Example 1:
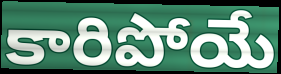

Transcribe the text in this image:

కారిపోయే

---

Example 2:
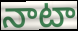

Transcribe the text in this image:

నాటా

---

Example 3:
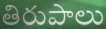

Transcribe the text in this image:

తిరుపాలు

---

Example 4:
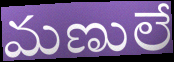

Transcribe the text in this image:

మణులే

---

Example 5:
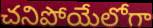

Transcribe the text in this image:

చనిపోయేలోగా